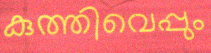
കുത്തിവെപ്പും